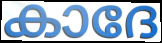
കാദേ